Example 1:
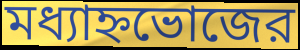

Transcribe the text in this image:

মধ্যাহ্নভোজের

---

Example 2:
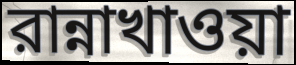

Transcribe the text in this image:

রান্নাখাওয়া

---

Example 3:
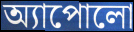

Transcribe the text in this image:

অ্যাপোলো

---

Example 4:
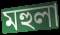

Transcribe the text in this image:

মহুলা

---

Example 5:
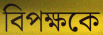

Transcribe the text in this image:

বিপক্ষকে